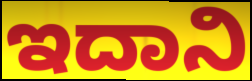
ಇದಾನಿ